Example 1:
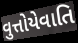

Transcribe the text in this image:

વુત્તોયેવાતિ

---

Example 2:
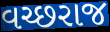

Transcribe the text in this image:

વચ્છરાજ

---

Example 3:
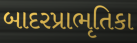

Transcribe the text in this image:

બાદરપ્રાભૃતિકા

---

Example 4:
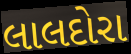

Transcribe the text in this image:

લાલદોરા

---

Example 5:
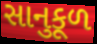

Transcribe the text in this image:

સાનુકૂળ